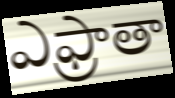
ఎఫ్రాతా